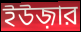
ইউজ়ার